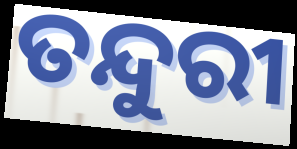
ତନ୍ଦୁରୀ